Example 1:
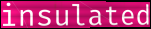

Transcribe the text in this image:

insulated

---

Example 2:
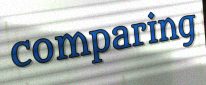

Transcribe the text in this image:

comparing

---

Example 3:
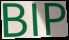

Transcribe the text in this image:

BIP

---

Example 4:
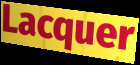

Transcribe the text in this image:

Lacquer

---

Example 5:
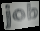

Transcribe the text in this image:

job